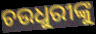
ଚଉଧୁରୀଙ୍କୁ